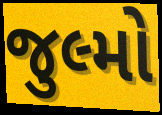
જુલ્મો